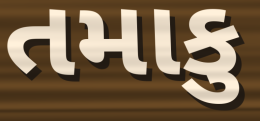
તમાકુ